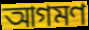
আগমণ